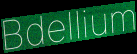
Bdellium